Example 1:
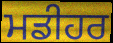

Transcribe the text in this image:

ਮਡੀਹਰ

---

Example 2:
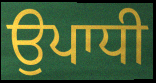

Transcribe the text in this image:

ਉਪਾਧੀ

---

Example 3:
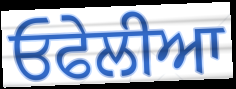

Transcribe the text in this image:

ਓਫੇਲੀਆ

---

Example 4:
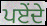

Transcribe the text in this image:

ਪਏਂਦੇ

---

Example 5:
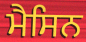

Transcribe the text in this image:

ਮੈਸਿਨ